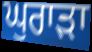
ਘੁਰਾੜਾ